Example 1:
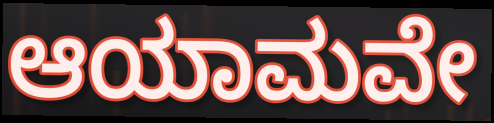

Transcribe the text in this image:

ಆಯಾಮವೇ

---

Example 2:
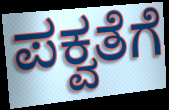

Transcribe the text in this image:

ಪಕ್ವತೆಗೆ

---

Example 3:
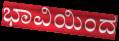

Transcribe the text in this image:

ಭಾವಿಯಿಂದ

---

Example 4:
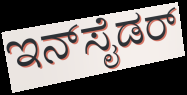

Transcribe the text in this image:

ಇನ್‌ಸೈಡರ್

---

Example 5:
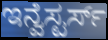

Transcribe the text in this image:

ಇನ್ವೆಸ್ಟರ್ಸ್